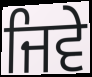
ਜਿਵੇ